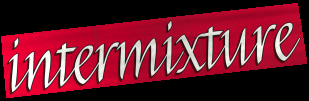
intermixture